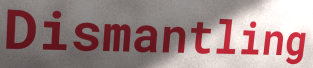
Dismantling